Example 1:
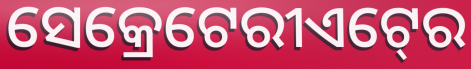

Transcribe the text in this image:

ସେକ୍ରେଟେରୀଏଟ୍‍ରେ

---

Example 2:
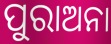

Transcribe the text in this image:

ପୁରାଅନା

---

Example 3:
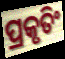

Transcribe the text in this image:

ପ୍ରକୃତିଂ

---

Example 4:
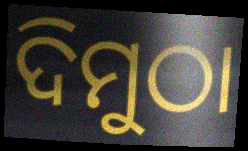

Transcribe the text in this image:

ଦିମୁଠା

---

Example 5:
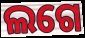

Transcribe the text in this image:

ଲଗେ